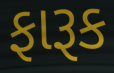
ફારૂક